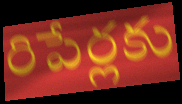
రిపేర్లకు